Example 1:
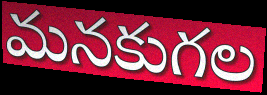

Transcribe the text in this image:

మనకుగల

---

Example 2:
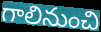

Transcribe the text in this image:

గాలినుంచి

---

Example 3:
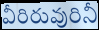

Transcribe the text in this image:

వీరిరువురినీ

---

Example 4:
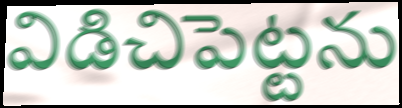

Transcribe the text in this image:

విడిచిపెట్టను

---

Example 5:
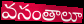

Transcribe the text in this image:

వసంతాలూ